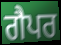
ਗੈਪਰ